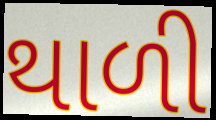
થાળી